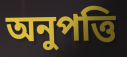
অনুপত্তি